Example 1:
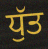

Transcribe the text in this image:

ਧੁੱਤ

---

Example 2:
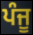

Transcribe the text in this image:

ਪੰਜੂ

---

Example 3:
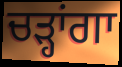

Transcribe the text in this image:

ਚੜ੍ਹਾਂਗਾ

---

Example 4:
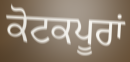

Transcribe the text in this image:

ਕੋਟਕਪੂਰਾਂ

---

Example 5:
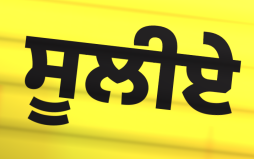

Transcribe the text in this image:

ਸੂਲੀਏ